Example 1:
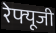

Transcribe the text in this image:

रेफ्यूजी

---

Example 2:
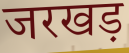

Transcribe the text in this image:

जरखड़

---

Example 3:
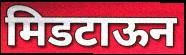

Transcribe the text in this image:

मिडटाऊन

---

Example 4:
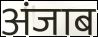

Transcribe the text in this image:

अंजाब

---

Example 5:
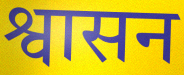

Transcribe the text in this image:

श्वासन